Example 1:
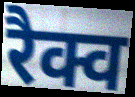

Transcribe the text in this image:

रैक्व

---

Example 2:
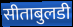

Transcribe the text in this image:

सीताबुलडी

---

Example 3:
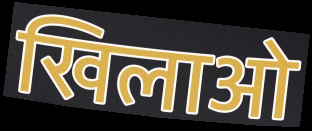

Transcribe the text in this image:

खिलाओ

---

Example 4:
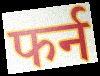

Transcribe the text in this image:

फर्न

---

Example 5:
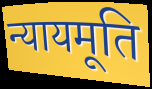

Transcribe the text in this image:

न्यायमूति